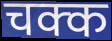
चक्‍क